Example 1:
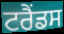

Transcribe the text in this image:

ਟਰੈਂਡਸ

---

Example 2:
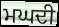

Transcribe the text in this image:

ਮਘਦੀ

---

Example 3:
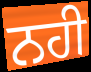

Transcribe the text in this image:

ਨਹੀ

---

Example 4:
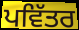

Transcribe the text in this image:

ਪਵਿੱਤਰ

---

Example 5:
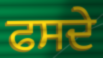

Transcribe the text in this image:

ਫਸਦੇ